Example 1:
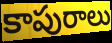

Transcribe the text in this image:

కాపురాలు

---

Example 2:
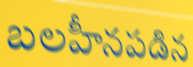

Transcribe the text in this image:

బలహీనపడిన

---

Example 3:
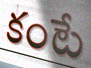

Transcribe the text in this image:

కంటే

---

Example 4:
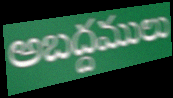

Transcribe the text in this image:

అబద్దములు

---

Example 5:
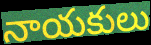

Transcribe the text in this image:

నాయకులు